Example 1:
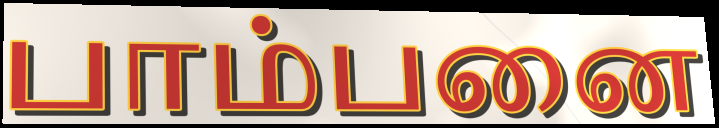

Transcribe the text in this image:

பாம்பனை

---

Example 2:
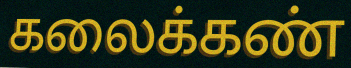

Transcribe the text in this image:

கலைக்கண்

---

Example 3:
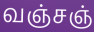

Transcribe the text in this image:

வஞ்சஞ்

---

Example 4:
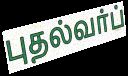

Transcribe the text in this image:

புதல்வர்ப்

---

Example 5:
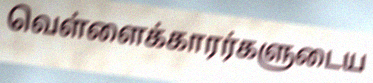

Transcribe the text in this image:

வெள்ளைக்காரர்களுடைய